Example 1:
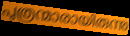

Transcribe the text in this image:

പുത്രന്മാരായിരുന്നു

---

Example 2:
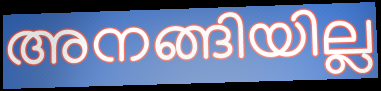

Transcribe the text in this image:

അനങ്ങിയില്ല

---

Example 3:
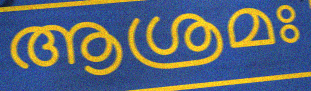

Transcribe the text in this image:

ആശ്രമഃ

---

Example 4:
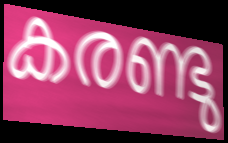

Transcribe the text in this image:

കരണ്ടു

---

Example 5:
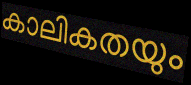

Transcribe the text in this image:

കാലികതയും